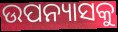
ଉପନ୍ୟାସକୁ